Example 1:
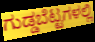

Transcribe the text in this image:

ಗುಡ್ಡಬೆಟ್ಟಗಳಲ್ಲಿ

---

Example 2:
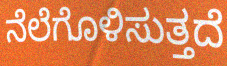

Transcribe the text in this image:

ನೆಲೆಗೊಳಿಸುತ್ತದೆ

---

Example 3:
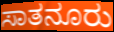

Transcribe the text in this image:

ಸಾತನೂರು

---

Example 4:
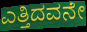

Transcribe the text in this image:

ಎತ್ತಿದವನೇ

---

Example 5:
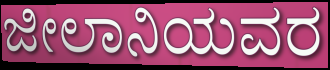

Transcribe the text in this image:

ಜೀಲಾನಿಯವರ